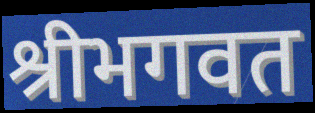
श्रीभगवत